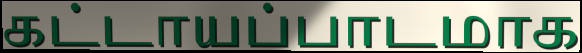
கட்டாயப்பாடமாக